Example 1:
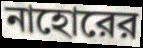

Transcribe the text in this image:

নাহোরের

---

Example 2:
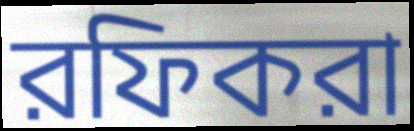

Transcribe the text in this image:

রফিকরা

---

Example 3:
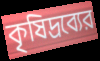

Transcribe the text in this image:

কৃষিদ্রব্যের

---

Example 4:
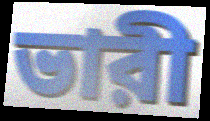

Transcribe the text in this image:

ভারী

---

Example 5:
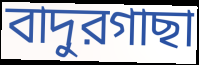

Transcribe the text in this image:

বাদুরগাছা